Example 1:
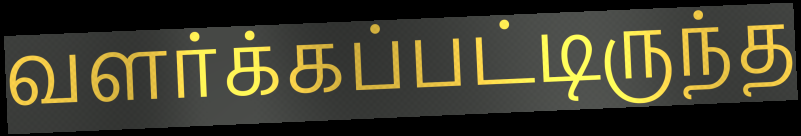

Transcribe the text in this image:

வளர்க்கப்பட்டிருந்த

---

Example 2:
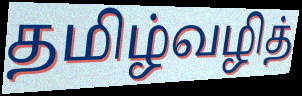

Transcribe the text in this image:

தமிழ்வழித்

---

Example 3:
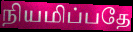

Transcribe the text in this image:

நியமிப்பதே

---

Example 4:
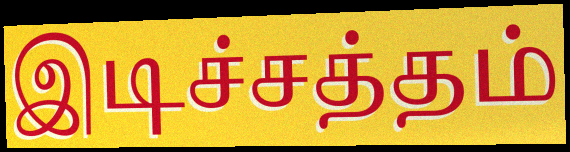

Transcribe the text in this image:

இடிச்சத்தம்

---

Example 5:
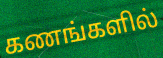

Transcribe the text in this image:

கணங்களில்